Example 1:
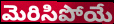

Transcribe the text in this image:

మెరిసిపోయే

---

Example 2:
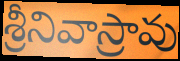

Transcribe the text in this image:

శ్రీనివాస్రావు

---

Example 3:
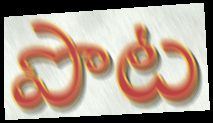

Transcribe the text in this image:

పొట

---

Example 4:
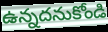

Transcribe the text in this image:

ఉన్నదనుకోండి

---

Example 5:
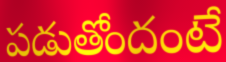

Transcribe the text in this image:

పడుతోందంటే